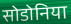
सोडोनिया